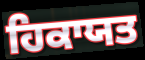
ਹਿਕਾਯਤ